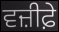
ਵਜ਼ੀਫ਼ੇ